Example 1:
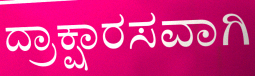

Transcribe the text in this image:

ದ್ರಾಕ್ಷಾರಸವಾಗಿ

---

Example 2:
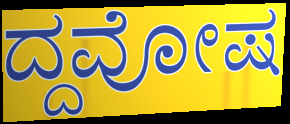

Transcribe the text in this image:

ದ್ದವೋಷ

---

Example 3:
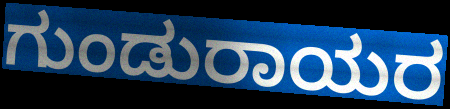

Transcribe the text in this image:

ಗುಂಡುರಾಯರ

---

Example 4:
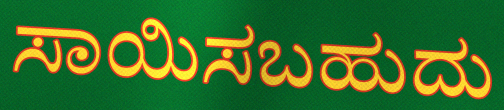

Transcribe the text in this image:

ಸಾಯಿಸಬಹುದು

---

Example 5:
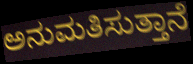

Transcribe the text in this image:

ಅನುಮತಿಸುತ್ತಾನೆ